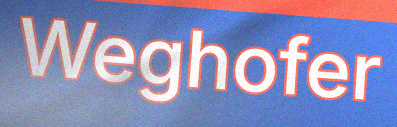
Weghofer